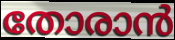
തോരാൻ